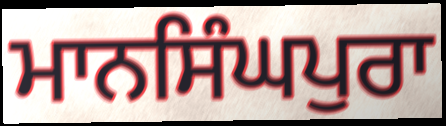
ਮਾਨਸਿੰਘਪੁਰਾ